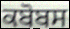
ਕਬੋਬਸ